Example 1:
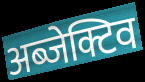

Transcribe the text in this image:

अब्जेक्टिव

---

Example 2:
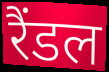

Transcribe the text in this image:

रैंडल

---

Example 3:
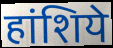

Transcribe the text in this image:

हांशिये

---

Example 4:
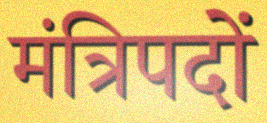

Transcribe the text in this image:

मंत्रिपदों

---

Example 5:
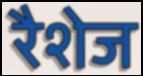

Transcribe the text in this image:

रैशेज